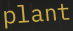
plant